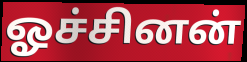
ஓச்சினன்